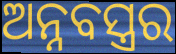
ଅନ୍ନବସ୍ତ୍ରର